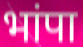
भांपा